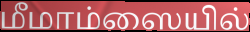
மீமாம்ஸையில்